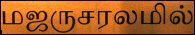
மஜருசரலமில்